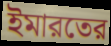
ইমারতের